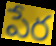
పేర